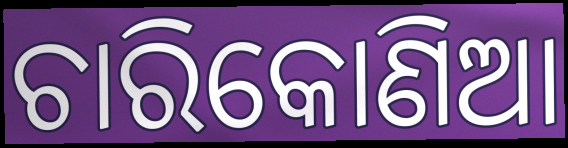
ଚାରିକୋଣିଆ